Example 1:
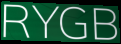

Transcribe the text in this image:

RYGB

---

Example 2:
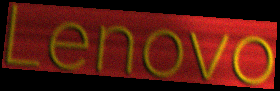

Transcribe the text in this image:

Lenovo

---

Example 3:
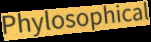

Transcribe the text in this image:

Phylosophical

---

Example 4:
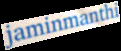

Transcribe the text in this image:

jaminmanthi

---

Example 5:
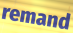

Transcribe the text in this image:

remand